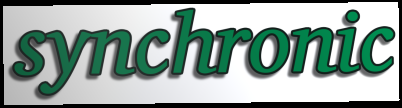
synchronic